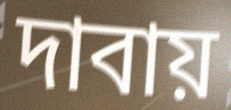
দাবায়